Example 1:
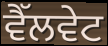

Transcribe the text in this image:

ਵੈੱਲਵੇਟ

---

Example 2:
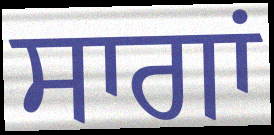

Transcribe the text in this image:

ਸਾਗਾਂ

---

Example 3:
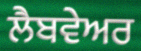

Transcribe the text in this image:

ਲੈਬਵੇਅਰ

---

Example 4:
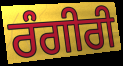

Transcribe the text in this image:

ਰੰਗੀਰੀ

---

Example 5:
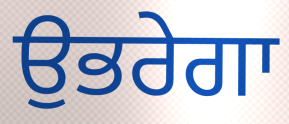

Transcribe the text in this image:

ਉਭਰੇਗਾ